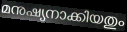
മനുഷ്യനാക്കിയതും